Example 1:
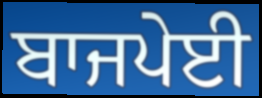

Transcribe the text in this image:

ਬਾਜਪੇਈ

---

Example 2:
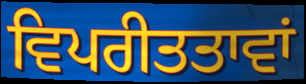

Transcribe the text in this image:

ਵਿਪਰੀਤਤਾਵਾਂ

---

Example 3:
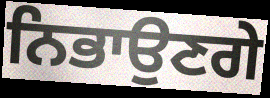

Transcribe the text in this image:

ਨਿਭਾਉਣਗੇ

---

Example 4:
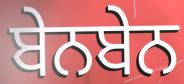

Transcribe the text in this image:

ਬੇਨਬੇਨ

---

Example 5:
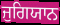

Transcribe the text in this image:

ਜੁਗਿਯਾਨ